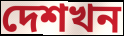
দেশখন